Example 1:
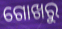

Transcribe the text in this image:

ଗୋଖରୁ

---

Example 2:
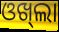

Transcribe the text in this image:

ଓଖ୍‌ଲା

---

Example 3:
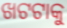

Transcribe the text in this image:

ଖଟଟାକୁ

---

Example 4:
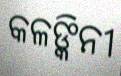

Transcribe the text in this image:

କଳଙ୍କିନୀ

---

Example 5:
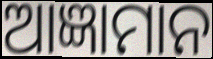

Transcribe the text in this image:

ଆଜ୍ଞାମାନ